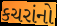
કચરાંનો